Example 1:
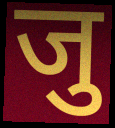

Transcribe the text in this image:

जु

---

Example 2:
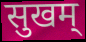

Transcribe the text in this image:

सुखम्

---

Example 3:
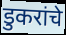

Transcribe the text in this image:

डुकरांचे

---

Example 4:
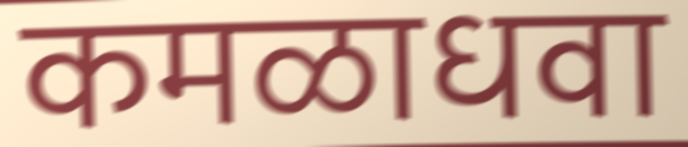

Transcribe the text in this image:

कमळाधवा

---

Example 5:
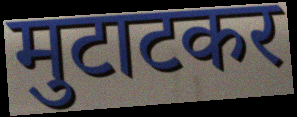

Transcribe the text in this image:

मुटाटकर